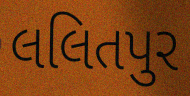
લલિતપુર